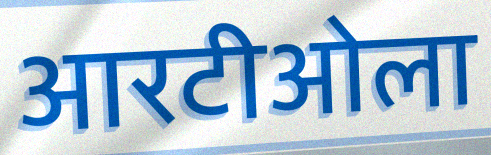
आरटीओला